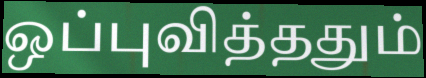
ஒப்புவித்ததும்